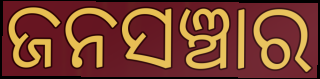
ଜନସଞ୍ଚାର